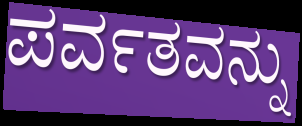
ಪರ್ವತವನ್ನು